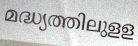
മദ്ധ്യത്തിലുളള